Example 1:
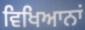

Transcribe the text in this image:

ਵਿਖਿਆਨਾਂ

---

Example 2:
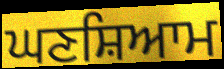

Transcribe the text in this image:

ਘਣਸ਼ਿਆਮ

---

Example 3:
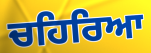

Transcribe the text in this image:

ਚਹਿਰਿਆ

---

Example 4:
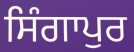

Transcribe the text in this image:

ਸਿੰਗਾਪੁਰ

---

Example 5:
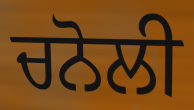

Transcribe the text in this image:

ਚਨੋਲੀ